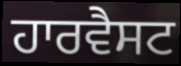
ਹਾਰਵੈਸਟ